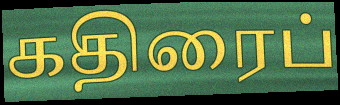
கதிரைப்